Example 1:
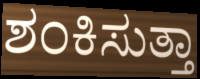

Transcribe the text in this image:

ಶಂಕಿಸುತ್ತಾ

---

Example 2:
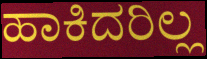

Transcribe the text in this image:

ಹಾಕಿದರಿಲ್ಲ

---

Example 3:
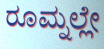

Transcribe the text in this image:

ರೂಮ್ನಲ್ಲೇ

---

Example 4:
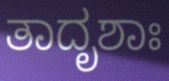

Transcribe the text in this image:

ತಾದೃಶಾಃ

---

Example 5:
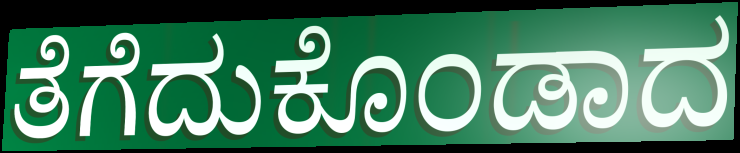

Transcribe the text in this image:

ತೆಗೆದುಕೊಂಡಾದ